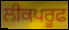
ਲੀਕਪਰੂਫ